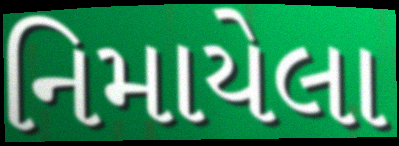
નિમાયેલા